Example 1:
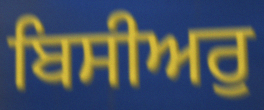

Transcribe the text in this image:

ਬਿਸੀਅਰੁ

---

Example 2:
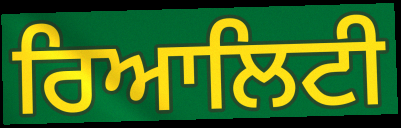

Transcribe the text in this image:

ਰਿਆਲਿਟੀ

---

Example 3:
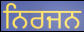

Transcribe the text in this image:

ਨਿਰਜਨ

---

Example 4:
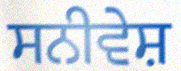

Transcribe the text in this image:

ਸਨੀਵੇਸ਼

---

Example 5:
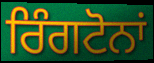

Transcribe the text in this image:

ਰਿੰਗਟੋਨਾਂ